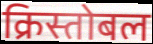
क्रिस्तोबल